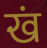
खं